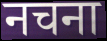
नचना